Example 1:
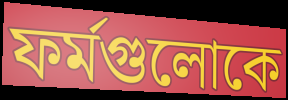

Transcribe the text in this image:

ফর্মগুলোকে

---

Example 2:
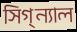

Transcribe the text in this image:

সিগ্‌ন্যাল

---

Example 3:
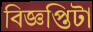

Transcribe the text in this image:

বিজ্ঞপ্তিটা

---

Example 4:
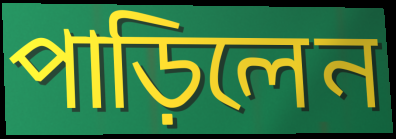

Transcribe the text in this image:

পাড়িলেন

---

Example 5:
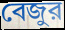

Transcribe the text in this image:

বেজুর